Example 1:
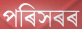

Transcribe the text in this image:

পৰিসৰৰ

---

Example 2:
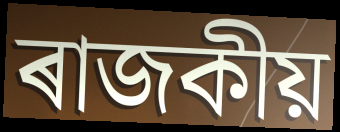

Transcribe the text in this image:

ৰাজকীয়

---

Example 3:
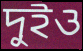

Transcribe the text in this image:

দুইও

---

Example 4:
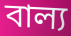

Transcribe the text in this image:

বাল্য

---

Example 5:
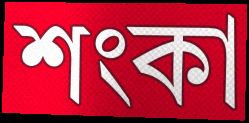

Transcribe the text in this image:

শংকা